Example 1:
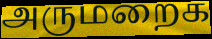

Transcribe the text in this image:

அருமறைக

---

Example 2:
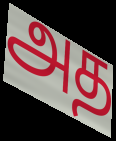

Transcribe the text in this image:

அத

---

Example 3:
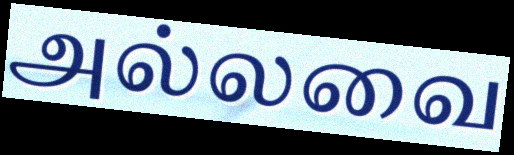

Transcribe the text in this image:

அல்லவை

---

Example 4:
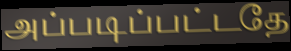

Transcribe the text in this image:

அப்படிப்பட்டதே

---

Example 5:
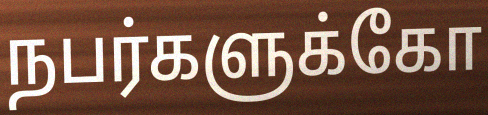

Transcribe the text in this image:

நபர்களுக்கோ